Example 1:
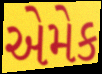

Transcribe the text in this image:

એમેક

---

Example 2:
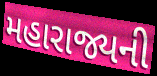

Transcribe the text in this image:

મહારાજ્યની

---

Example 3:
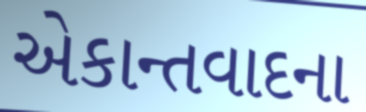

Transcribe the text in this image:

એકાન્તવાદના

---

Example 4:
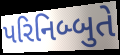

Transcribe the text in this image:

પરિનિબ્બુતે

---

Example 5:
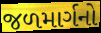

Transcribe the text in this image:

જળમાર્ગનો